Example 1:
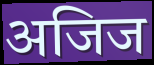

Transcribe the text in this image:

अजिज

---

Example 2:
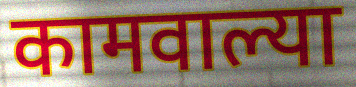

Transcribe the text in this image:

कामवाल्या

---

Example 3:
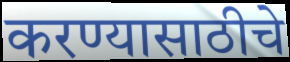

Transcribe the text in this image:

करण्यासाठीचे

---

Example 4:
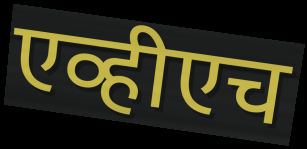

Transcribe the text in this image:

एव्हीएच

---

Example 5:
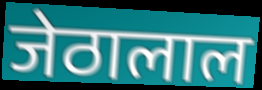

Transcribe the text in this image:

जेठालाल